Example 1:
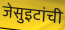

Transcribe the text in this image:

जेसुइटांची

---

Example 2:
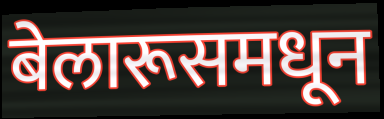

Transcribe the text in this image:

बेलारूसमधून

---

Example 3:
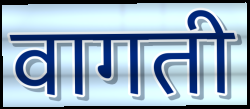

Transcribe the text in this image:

वागती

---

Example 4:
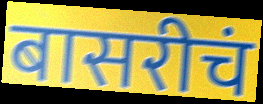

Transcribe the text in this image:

बासरीचं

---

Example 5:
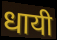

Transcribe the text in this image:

धायी